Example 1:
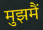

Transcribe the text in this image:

मुझमैं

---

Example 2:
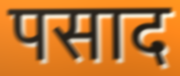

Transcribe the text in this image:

पसाद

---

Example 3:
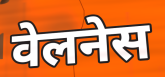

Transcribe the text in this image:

वेलनेस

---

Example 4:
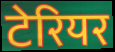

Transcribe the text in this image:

टेरियर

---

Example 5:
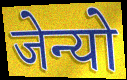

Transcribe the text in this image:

जेन्यो